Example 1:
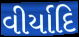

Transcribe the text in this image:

વીર્યાદિ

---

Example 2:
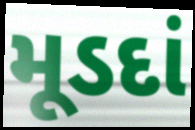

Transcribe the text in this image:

મૂડદાં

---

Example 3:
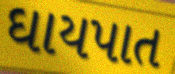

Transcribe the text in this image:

ઘાયપાત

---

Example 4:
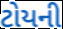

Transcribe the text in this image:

ટોયની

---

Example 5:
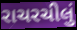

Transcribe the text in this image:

રાચરચીલું